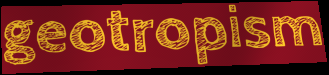
geotropism